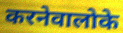
करनेवालोके